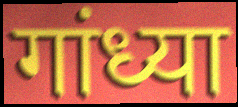
गांध्या